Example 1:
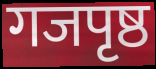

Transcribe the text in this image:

गजपृष्ठ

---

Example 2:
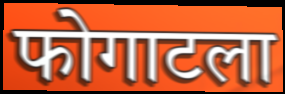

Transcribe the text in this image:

फोगाटला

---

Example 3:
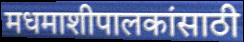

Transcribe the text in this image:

मधमाशीपालकांसाठी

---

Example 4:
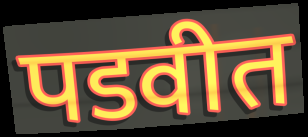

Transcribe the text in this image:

पडवीत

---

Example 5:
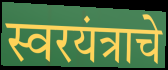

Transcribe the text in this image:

स्वरयंत्राचे